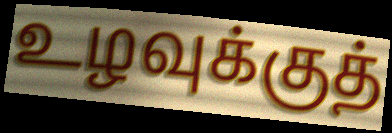
உழவுக்குத்